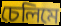
চেলিমে